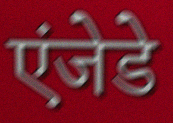
एंजेडे